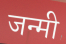
जन्मी